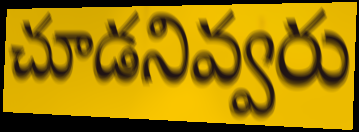
చూడనివ్వరు